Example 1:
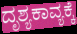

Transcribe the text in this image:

ದೃಶ್ಯಕಾವ್ಯಕ್ಕೆ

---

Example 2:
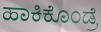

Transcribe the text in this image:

ಹಾಕಿಕೊಂಡ್ರೆ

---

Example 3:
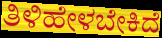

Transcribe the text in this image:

ತಿಳಿಹೇಳಬೇಕಿದೆ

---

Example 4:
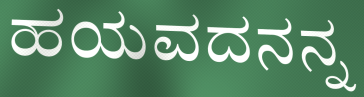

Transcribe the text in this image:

ಹಯವದನನ್ನ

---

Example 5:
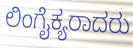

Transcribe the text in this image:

ಲಿಂಗೈಕ್ಯರಾದರು